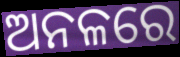
ଅନଳରେ